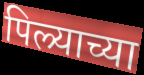
पिल्याच्या